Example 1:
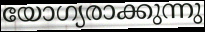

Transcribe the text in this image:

യോഗ്യരാക്കുന്നു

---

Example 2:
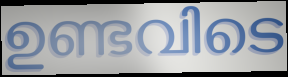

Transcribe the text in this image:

ഉണ്ടവിടെ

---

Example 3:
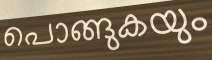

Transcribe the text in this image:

പൊങ്ങുകയും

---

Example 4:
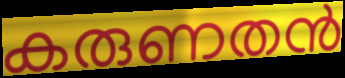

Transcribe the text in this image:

കരുണതൻ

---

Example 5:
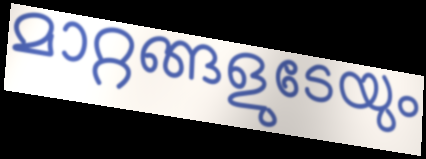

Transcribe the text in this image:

മാറ്റങ്ങളുടേയും